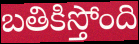
బతికిస్తోంది